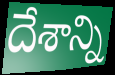
దేశాన్ని